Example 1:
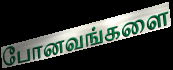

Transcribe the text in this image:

போனவங்களை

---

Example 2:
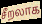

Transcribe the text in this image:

சீறலாக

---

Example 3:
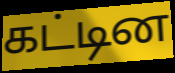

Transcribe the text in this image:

கட்டின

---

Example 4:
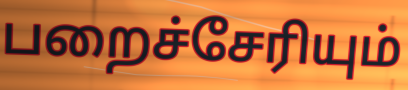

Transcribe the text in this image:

பறைச்சேரியும்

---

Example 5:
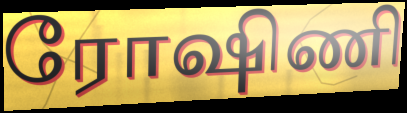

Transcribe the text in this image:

ரோஷிணி